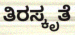
ತಿರಸ್ಕೃತೆ